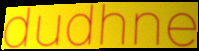
dudhne